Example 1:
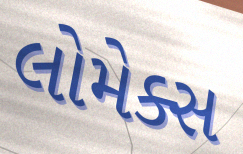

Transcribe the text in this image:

લોમેક્સ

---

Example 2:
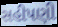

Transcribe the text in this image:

સહીપણી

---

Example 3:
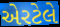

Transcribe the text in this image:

એરટેલે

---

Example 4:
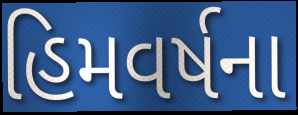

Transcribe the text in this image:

હિમવર્ષના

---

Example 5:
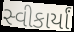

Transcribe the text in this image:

સ્વીકાર્યાં